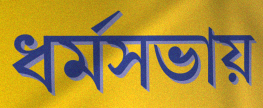
ধর্মসভায়